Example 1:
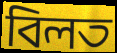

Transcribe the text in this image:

বিলত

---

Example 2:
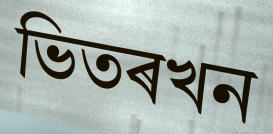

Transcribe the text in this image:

ভিতৰখন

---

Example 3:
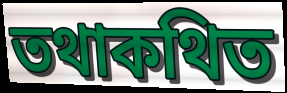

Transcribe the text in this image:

তথাকথিত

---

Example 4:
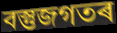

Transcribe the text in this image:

বস্তুজগতৰ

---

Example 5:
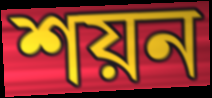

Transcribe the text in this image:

শয়ন